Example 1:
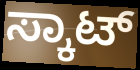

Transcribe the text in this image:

ಸ್ಕಾಟ್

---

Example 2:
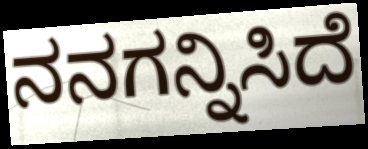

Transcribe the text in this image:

ನನಗನ್ನಿಸಿದೆ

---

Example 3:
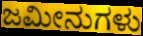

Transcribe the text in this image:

ಜಮೀನುಗಳು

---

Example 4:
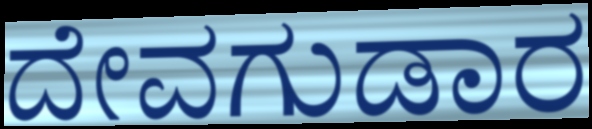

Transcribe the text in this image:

ದೇವಗುಡಾರ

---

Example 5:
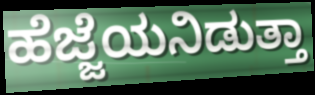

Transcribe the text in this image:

ಹೆಜ್ಜೆಯನಿಡುತ್ತಾ